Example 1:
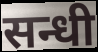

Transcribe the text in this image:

सन्धी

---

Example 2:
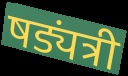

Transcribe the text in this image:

षड्यंत्री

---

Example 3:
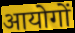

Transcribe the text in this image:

आयोगों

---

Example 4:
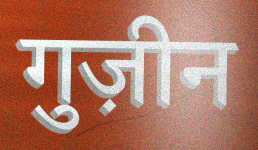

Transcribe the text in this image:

गुज़ीन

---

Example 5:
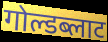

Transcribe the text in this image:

गोल्डब्लाट